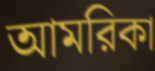
আমরিকা